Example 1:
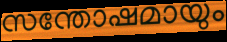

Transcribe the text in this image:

സന്തോഷമായും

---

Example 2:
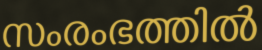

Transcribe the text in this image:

സംരംഭത്തിൽ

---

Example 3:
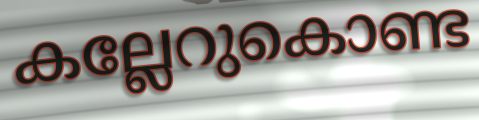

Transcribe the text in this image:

കല്ലേറുകൊണ്ട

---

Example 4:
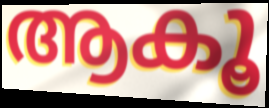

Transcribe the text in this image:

ആകൂ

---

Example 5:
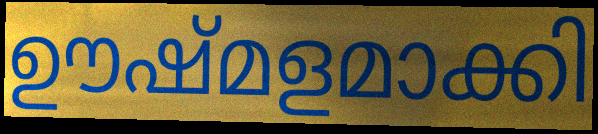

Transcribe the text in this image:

ഊഷ്മളമാക്കി